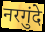
नरगुंदे